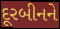
દૂરબીનને